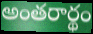
అంతరార్థం